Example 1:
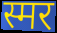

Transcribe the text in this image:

स्मर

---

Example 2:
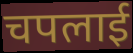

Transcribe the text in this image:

चपलाई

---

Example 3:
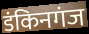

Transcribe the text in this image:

डंकिनगंज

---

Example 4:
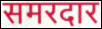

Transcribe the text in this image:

समरदार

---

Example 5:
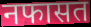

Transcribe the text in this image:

नफासत